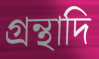
গ্রন্থাদি